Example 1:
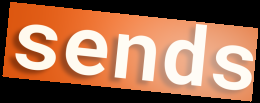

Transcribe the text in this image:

sends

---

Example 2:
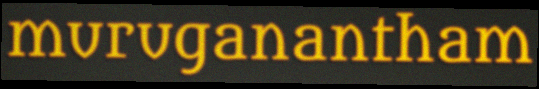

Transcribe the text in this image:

muruganantham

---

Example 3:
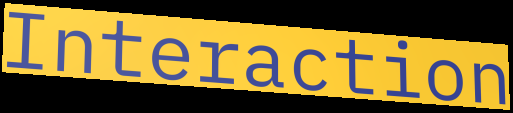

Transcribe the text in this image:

Interaction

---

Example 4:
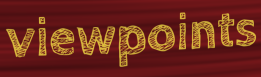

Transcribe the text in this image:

viewpoints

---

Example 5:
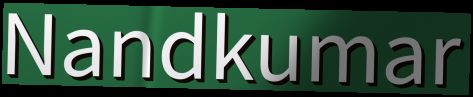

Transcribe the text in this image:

Nandkumar